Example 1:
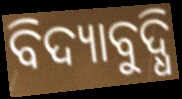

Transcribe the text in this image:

ବିଦ୍ୟାବୁଦ୍ଧି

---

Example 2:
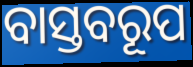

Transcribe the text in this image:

ବାସ୍ତବରୂପ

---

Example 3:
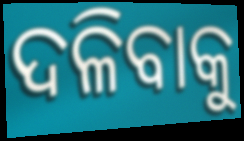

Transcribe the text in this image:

ଦଳିବାକୁ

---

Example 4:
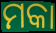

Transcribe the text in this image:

ମକା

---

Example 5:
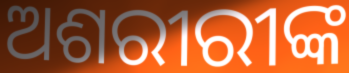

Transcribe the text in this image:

ଅଶରୀରୀଙ୍କ